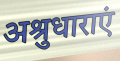
अश्रुधाराएं